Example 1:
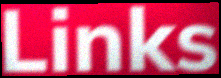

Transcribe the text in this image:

Links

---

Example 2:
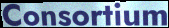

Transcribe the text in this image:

Consortium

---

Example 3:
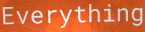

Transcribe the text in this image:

Everything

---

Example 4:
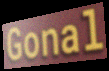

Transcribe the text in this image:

Gonal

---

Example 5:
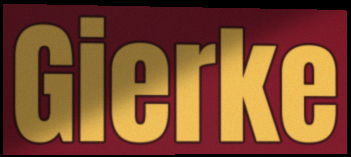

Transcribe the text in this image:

Gierke